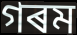
গৰম